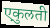
एकुलती